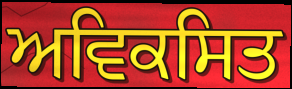
ਅਵਿਕਸਿਤ